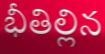
భీతిల్లిన